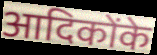
आदिकोंके